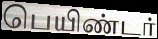
பெயிண்டர்